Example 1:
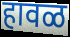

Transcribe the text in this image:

हावळ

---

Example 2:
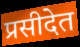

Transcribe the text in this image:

प्रसीदेत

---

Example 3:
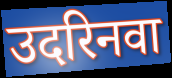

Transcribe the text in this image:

उदरिनवा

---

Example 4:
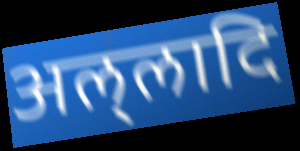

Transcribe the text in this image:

अल्लादि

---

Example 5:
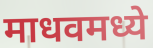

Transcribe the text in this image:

माधवमध्ये